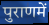
पुराणमें